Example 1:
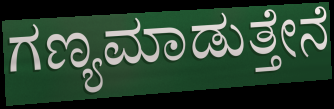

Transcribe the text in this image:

ಗಣ್ಯಮಾಡುತ್ತೇನೆ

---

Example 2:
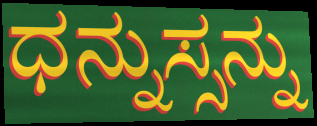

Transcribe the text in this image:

ಧನ್ನುಸ್ಸನ್ನು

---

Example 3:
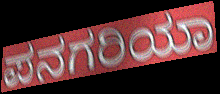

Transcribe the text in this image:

ಪನಗರಿಯಾ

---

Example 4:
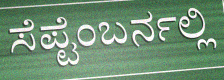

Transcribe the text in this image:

ಸೆಪ್ಟೆಂಬರ್ನಲ್ಲಿ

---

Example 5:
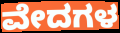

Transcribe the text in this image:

ವೇದಗಳ